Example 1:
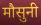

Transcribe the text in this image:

मौसुनी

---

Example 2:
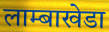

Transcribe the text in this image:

लाम्बाखेडा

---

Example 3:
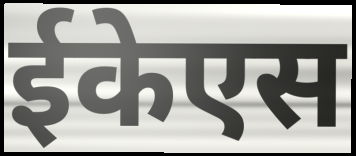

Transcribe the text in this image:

ईकेएस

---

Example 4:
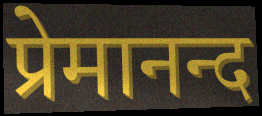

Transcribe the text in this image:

प्रेमानन्द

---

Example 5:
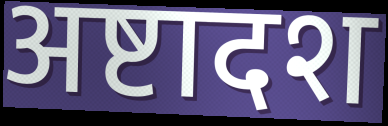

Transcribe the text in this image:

अष्टादश